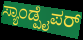
ಸ್ಯಾಂಡ್ಪೈಪರ್